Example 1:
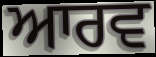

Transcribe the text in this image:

ਆਰਵ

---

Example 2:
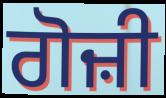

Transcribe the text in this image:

ਗੋਜ਼ੀ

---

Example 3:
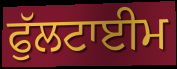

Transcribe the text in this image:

ਫੁੱਲਟਾਈਮ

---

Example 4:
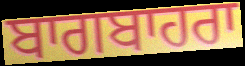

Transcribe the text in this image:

ਬਾਗਬਾਹਰਾ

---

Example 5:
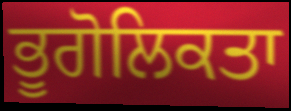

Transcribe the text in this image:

ਭੂਗੋਲਿਕਤਾ